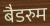
बैडरुम